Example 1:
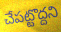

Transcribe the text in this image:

చేపట్టొద్దని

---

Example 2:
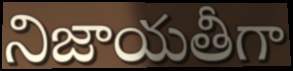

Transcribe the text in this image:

నిజాయతీగా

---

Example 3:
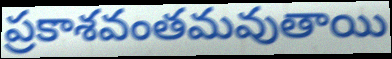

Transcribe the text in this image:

ప్రకాశవంతమవుతాయి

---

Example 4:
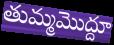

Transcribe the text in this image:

తుమ్మమొద్దూ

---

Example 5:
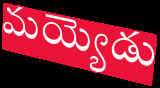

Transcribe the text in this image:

మయ్యెడు